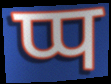
प्प